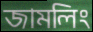
জামলিং